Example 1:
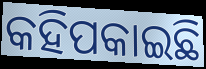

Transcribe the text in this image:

କହିପକାଇଛି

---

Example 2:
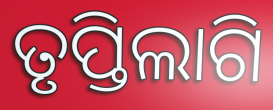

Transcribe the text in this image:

ତୃପ୍ତିଲାଗି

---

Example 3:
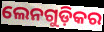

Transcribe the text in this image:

ଲେନଗୁଡ଼ିକର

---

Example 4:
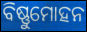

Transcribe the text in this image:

ବିଷ୍ଣୁମୋହନ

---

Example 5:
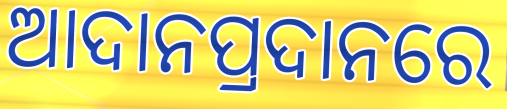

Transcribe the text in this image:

ଆଦାନପ୍ରଦାନରେ